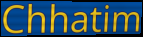
Chhatim